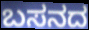
ಬಸನದ